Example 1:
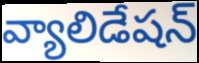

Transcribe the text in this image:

వ్యాలిడేషన్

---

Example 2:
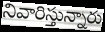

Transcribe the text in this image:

నివారిస్తున్నారు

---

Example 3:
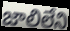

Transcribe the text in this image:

జాలిలేని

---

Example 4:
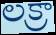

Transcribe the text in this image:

లక్రా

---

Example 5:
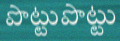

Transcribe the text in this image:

పొట్టుపొట్టు